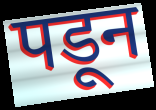
पडून